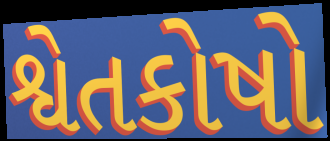
શ્વેતકોષો